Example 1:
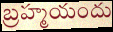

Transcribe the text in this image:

బ్రహ్మయందు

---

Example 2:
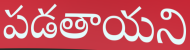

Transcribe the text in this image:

పడతాయని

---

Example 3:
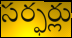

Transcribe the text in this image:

సర్ఫర్లు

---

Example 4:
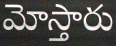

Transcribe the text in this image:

మోస్తారు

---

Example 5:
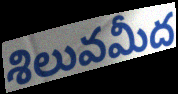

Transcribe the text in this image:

శిలువమీద